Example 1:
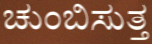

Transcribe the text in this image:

ಚುಂಬಿಸುತ್ತ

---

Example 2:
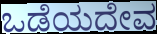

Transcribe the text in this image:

ಒಡೆಯದೇವ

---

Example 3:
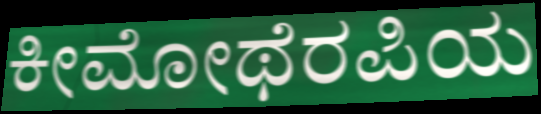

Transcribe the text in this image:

ಕೀಮೋಥೆರಪಿಯ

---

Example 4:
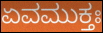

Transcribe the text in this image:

ಏವಮುಕ್ತಃ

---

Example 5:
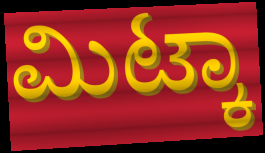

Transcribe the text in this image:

ಮಿಟ್ಕಾ